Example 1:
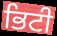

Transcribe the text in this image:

ਭਿਟੀ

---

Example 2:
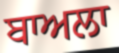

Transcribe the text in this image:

ਬਾਅਲਾ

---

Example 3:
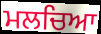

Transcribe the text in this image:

ਮਲਚਿਆ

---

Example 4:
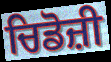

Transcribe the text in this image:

ਚਿਡੋਜ਼ੀ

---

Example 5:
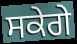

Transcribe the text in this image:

ਸਕੇਗੇ